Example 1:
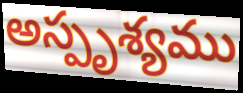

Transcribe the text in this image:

అస్పృశ్యము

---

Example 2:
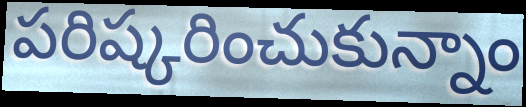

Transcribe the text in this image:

పరిష్కరించుకున్నాం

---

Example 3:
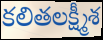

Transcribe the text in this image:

కలితలక్ష్మీశ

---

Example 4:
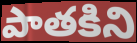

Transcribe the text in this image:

పాతకిని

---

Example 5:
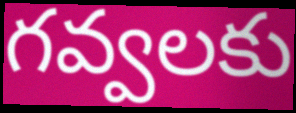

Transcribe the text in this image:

గవ్వలకు